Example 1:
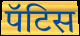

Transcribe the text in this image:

पॅटिस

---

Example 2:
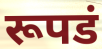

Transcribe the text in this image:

रूपडं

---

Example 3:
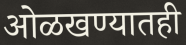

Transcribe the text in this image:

ओळखण्यातही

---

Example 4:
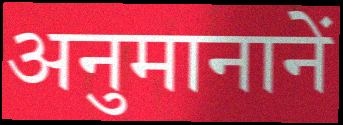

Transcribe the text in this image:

अनुमानानें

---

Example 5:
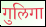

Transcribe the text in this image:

गुलिगा